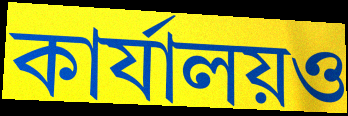
কার্যালয়ও